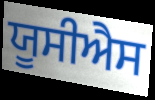
ਯੂਸੀਐਸ